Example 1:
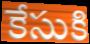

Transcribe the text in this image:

కేసుకి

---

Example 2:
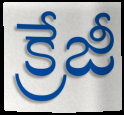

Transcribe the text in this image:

క్రేజీ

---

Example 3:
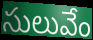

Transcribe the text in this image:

సులువేం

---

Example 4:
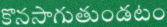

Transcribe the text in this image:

కొనసాగుతుండటం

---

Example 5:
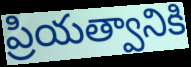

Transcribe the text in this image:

ప్రియత్వానికి